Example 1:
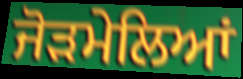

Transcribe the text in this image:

ਜੋੜਮੇਲਿਆਂ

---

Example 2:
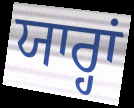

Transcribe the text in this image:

ਯਾਰ੍ਹਾਂ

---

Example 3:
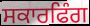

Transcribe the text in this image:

ਸਕਾਰਫਿੰਗ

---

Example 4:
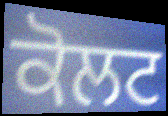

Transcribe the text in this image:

ਕੋਲਟ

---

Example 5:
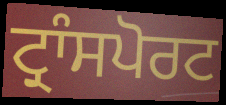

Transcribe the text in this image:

ਟ੍ਰਾੰਸਪੋਰਟ